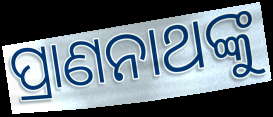
ପ୍ରାଣନାଥଙ୍କୁ